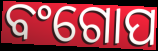
ବଂଗୋପ